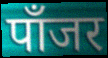
पाँजर